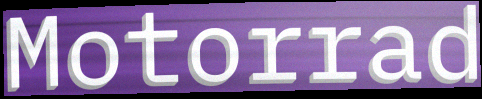
Motorrad